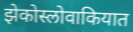
झेकोस्लोवाकियात